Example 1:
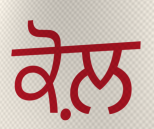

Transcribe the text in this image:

ਕੋਲ਼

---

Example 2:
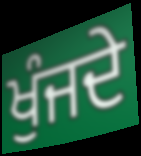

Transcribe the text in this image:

ਖੁੰਜਦੇ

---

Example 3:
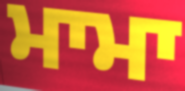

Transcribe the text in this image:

ਮਾਮਾ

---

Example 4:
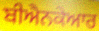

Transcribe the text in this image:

ਬੀਐਨਕੇਆਰ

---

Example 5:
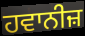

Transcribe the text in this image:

ਹਵਾਨੀਜ਼